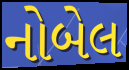
નોબેલ